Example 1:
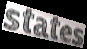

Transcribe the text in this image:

states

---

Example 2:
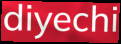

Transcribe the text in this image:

diyechi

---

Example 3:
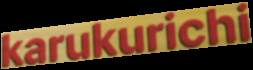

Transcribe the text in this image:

karukurichi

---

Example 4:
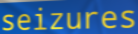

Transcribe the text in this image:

seizures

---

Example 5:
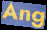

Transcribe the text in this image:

Ang